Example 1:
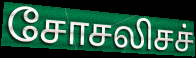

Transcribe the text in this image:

சோசலிசச்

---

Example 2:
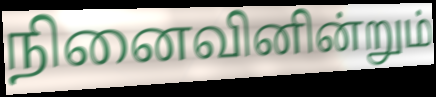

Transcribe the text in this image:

நினைவினின்றும்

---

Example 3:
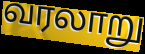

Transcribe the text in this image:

வரலாறு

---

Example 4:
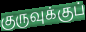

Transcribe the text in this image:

குருவுக்குப்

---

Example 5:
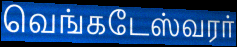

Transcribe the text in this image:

வெங்கடேஸ்வரர்